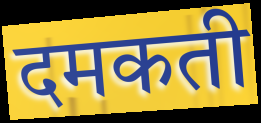
दमकती